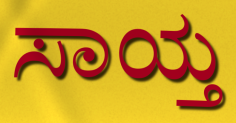
ಸಾಯ್ತ